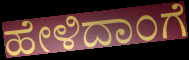
ಹೇಳಿದಾಂಗೆ